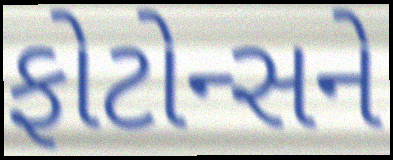
ફોટોન્સને